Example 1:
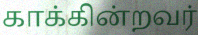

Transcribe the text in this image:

காக்கின்றவர்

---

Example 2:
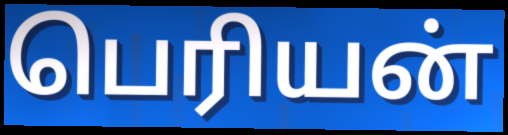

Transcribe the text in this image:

பெரியன்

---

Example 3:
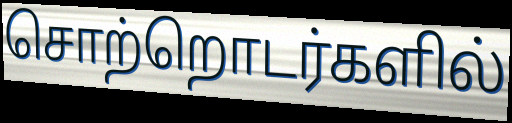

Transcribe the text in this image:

சொற்றொடர்களில்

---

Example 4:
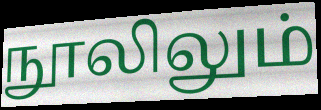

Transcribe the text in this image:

நூலிலும்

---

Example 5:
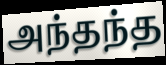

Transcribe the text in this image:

அந்தந்த